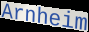
Arnheim